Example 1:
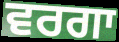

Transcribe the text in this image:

ਵਰਗਾ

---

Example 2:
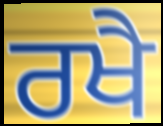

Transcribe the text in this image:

ਰਖੈ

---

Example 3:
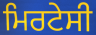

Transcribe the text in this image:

ਮਿਰਟੇਸੀ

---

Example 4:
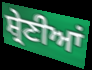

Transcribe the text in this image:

ਸ਼੍ਰੇਣੀਆਂ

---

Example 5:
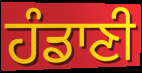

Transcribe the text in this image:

ਹੰਡਾਣੀ